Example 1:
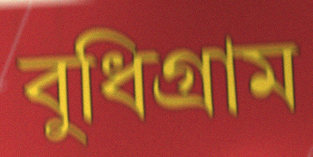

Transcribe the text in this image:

বুধিগ্রাম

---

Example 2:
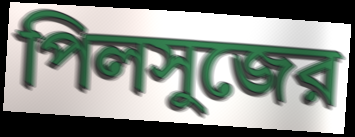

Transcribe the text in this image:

পিলসুজের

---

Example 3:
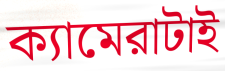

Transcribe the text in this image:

ক্যামেরাটাই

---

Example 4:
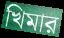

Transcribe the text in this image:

খিমার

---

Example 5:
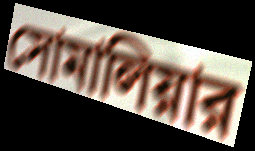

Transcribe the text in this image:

সোমালিয়ার